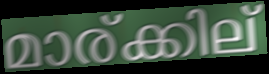
മാര്ക്കില്